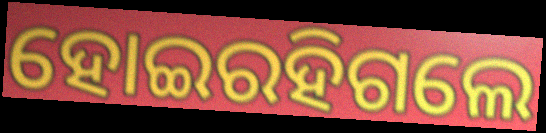
ହୋଇରହିଗଲେ